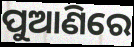
ପୁଆଣିରେ